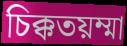
চিক্কতয়ম্মা